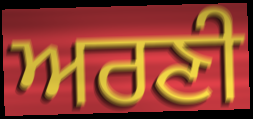
ਅਰਣੀ